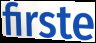
firste